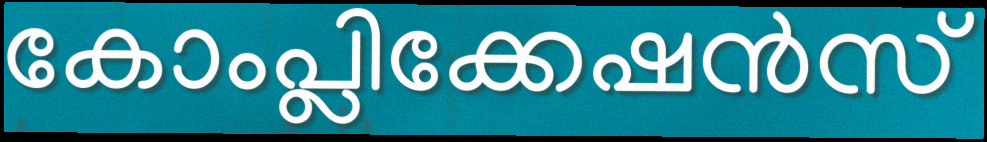
കോംപ്ലിക്കേഷൻസ്